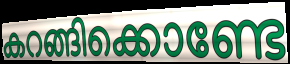
കറങ്ങിക്കൊണ്ടേ